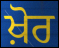
ਖ਼ੋਰ